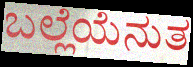
ಬಲ್ಲೆಯೆನುತ